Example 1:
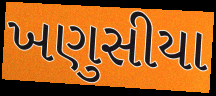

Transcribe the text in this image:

ખણુસીયા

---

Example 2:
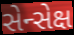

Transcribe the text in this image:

સેન્સેક્ષ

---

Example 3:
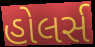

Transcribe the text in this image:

હોલર્સ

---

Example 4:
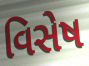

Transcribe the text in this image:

વિસેષ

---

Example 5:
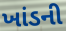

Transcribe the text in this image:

ખાંડની